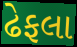
ઢેફલા